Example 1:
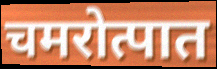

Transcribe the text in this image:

चमरोत्पात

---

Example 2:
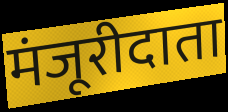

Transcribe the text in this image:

मंजूरीदाता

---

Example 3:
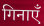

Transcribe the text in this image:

गिनाएँ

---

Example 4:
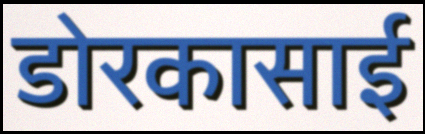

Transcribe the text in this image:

डोरकासाई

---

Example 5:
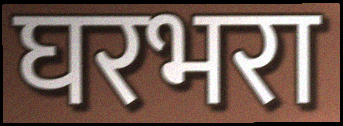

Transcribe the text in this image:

घरभरा